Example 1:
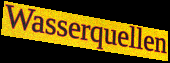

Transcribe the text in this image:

Wasserquellen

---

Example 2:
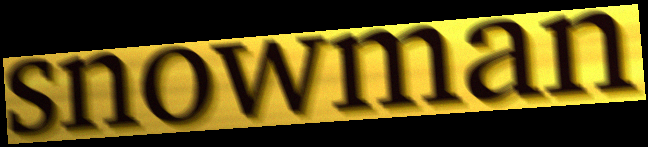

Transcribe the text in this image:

snowman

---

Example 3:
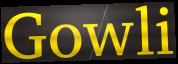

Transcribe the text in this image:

Gowli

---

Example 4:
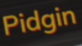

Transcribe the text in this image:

Pidgin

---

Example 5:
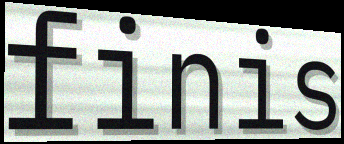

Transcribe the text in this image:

finis